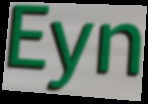
Eyn